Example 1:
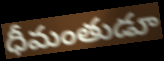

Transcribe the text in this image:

ధీమంతుడూ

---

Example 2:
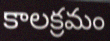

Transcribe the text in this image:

కాలక్రమం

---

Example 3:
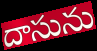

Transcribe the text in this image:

దాసును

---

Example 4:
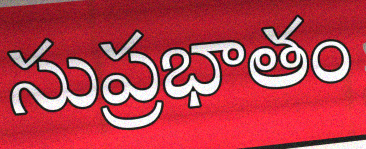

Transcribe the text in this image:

సుప్రభాతం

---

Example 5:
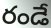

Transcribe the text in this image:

రండే